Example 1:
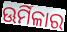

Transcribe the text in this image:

ଊର୍ମିଳାର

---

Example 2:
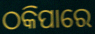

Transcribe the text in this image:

ଠକିପାରେ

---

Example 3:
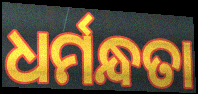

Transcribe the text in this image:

ଧର୍ମନ୍ଧତା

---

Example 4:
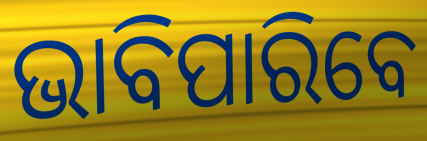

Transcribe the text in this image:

ଭାବିପାରିବେ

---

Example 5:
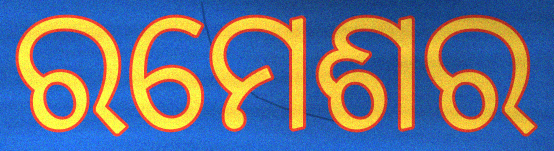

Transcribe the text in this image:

ରମେଶର